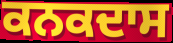
ਕਨਕਦਾਸ